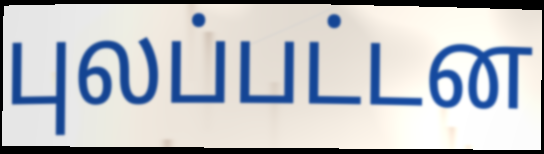
புலப்பட்டன